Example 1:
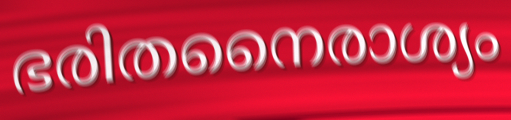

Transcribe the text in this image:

ഭരിതനൈരാശ്യം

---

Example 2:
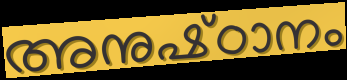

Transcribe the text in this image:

അനുഷ്‌ഠാനം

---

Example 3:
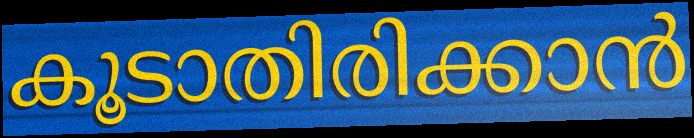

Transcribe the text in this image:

കൂടാതിരിക്കാൻ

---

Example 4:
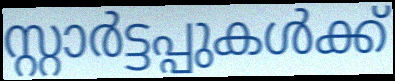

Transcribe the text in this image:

സ്റ്റാർട്ടപ്പുകൾക്ക്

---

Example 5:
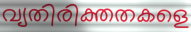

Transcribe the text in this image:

വ്യതിരിക്തതകളെ